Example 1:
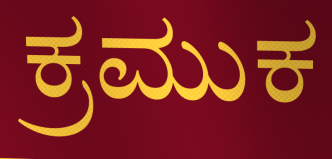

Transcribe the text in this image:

ಕ್ರಮುಕ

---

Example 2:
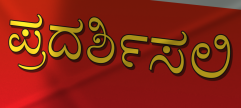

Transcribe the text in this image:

ಪ್ರದರ್ಶಿಸಲಿ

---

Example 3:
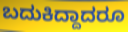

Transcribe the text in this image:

ಬದುಕಿದ್ದಾದರೂ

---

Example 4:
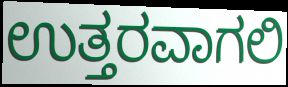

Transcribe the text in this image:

ಉತ್ತರವಾಗಲಿ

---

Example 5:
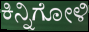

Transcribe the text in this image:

ಕಿನ್ನಿಗೋಳಿ